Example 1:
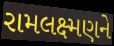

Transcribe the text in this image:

રામલક્ષ્મણને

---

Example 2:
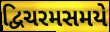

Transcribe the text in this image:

દ્વિચરમસમયે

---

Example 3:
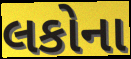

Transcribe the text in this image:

લકોના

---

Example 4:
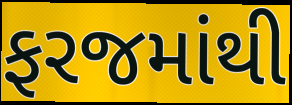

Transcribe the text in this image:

ફરજમાંથી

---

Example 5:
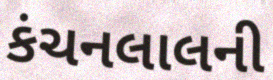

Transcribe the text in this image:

કંચનલાલની